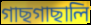
গাছগাছালি